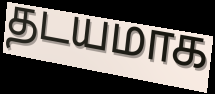
தடயமாக